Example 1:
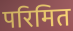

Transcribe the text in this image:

परिमित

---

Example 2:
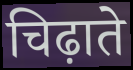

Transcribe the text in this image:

चिढ़ाते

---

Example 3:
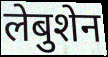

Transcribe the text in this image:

लेबुशेन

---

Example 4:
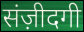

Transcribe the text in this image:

संज़ीदगी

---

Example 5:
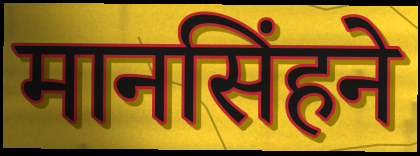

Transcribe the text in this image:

मानसिंहने